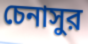
চেনাসুর